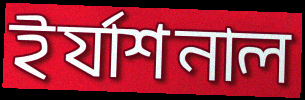
ইর্যাশনাল